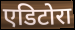
एडिटोरा